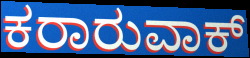
ಕರಾರುವಾಕ್